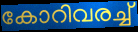
കോറിവരച്ച്